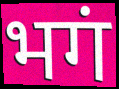
भगं